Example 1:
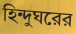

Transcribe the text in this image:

হিন্দুঘরের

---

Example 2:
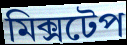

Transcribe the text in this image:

মিক্সটেপ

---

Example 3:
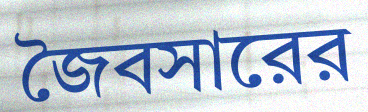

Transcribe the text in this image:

জৈবসারের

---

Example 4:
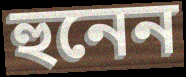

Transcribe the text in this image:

হুনেন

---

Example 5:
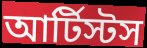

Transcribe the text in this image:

আর্টিস্টস